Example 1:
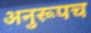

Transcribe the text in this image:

अनुरूपच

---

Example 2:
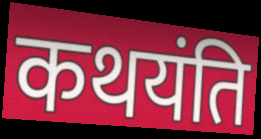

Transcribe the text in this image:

कथयंति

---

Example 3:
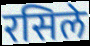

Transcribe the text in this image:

रसिले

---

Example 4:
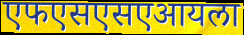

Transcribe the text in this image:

एफएसएसएआयला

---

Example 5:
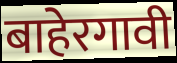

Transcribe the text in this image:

बाहेरगावी